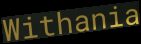
Withania